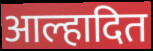
आल्हादित